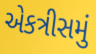
એકત્રીસમું